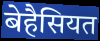
बेहैसियत